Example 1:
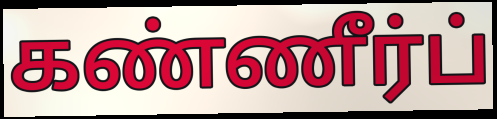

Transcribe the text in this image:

கண்ணீர்ப்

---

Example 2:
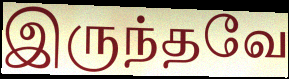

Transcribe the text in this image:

இருந்தவே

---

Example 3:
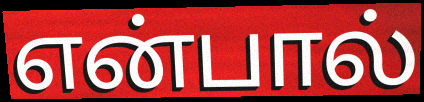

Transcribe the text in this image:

என்பால்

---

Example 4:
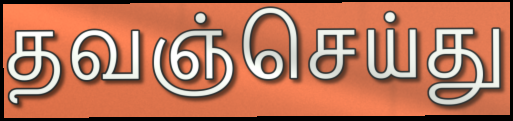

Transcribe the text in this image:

தவஞ்செய்து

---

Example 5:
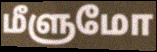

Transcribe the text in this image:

மீளுமோ